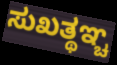
ಸುಖತ್ಥಞ್ಚ